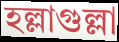
হল্লাগুল্লা